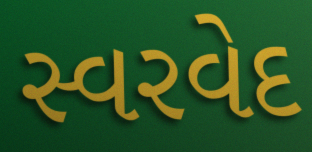
સ્વરવેદ